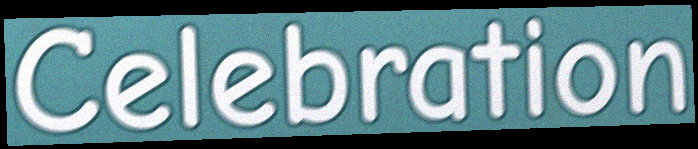
Celebration